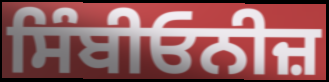
ਸਿੰਬੀਓਨੀਜ਼